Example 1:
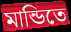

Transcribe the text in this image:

মান্ডিতে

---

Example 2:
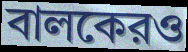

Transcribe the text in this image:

বালকেরও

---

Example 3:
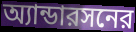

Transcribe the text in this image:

অ্যান্ডারসনের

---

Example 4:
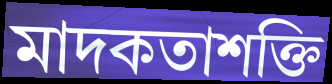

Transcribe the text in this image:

মাদকতাশক্তি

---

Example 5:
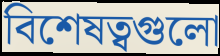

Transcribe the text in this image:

বিশেষত্বগুলো